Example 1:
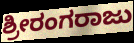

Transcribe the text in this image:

ಶ್ರೀರಂಗರಾಜು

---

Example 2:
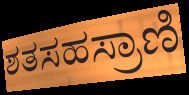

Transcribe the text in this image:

ಶತಸಹಸ್ರಾಣಿ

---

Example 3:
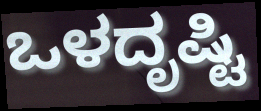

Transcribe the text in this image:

ಒಳದೃಷ್ಟಿ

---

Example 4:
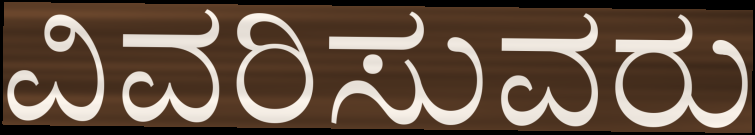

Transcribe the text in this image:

ವಿವರಿಸುವರು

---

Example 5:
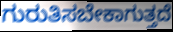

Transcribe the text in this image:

ಗುರುತಿಸಬೇಕಾಗುತ್ತದೆ